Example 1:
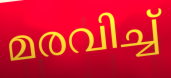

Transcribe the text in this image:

മരവിച്ച്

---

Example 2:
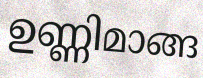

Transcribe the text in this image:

ഉണ്ണിമാങ്ങ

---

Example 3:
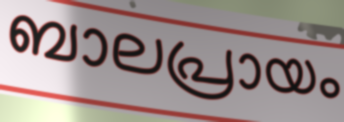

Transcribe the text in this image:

ബാലപ്രായം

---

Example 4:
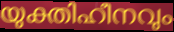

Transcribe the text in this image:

യുക്തിഹീനവും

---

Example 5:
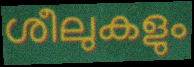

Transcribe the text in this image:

ശീലുകളും